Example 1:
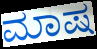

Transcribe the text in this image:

ಮಾಷ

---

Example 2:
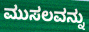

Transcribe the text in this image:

ಮುಸಲವನ್ನು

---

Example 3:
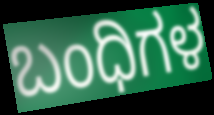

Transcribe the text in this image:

ಬಂಧಿಗಳ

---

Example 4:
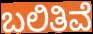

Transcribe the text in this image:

ಬಲಿತಿವೆ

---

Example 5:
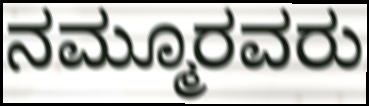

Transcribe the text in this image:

ನಮ್ಮೂರವರು